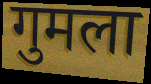
गुमला